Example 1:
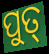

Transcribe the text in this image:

ପୁତ୍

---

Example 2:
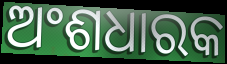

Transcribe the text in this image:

ଅଂଶଧାରକ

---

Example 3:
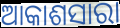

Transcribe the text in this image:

ଆକାଶସାରା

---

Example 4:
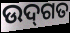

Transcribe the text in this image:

ଉଦ୍‌ଗତ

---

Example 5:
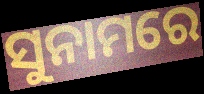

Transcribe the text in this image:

ସୁନାମରେ